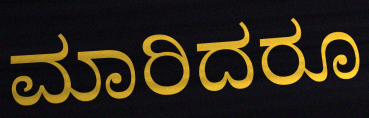
ಮಾರಿದರೂ